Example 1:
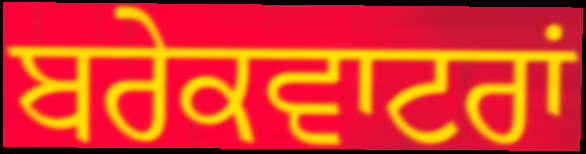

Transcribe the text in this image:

ਬਰੇਕਵਾਟਰਾਂ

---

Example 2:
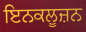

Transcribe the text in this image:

ਇਨਕਲੂਜ਼ਨ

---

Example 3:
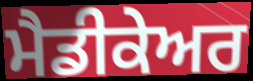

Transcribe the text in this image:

ਮੈਡੀਕੇਅਰ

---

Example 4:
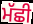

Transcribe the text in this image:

ਮੱਛੀ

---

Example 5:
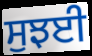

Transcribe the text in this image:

ਸੁਝਈ